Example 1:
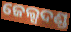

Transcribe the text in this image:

ଜେଲ୍ସଦଣ୍ଡ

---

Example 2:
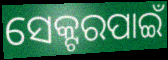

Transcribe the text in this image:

ସେକ୍ଟରପାଇଁ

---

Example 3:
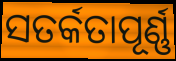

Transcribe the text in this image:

ସତର୍କତାପୂର୍ଣ୍ଣ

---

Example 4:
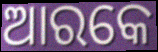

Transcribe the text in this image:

ଆରକେ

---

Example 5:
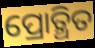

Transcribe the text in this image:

ପ୍ରୋତ୍ଥିତ